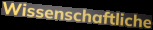
Wissenschaftliche